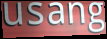
usang